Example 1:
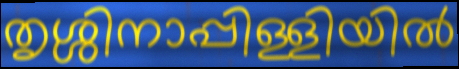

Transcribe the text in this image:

തൃശ്ശിനാപ്പിള്ളിയിൽ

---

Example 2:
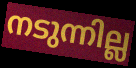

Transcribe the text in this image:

നടുന്നില്ല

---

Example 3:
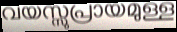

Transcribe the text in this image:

വയസ്സുപ്രായമുള്ള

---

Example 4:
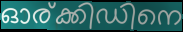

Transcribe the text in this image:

ഓര്ക്കിഡിനെ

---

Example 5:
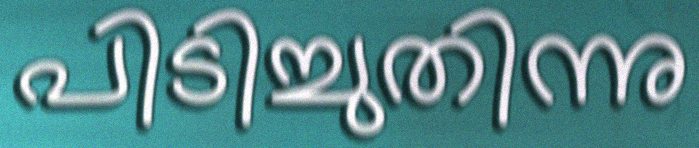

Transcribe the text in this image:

പിടിച്ചുതിന്നു